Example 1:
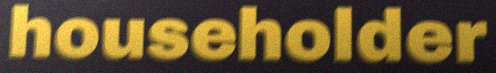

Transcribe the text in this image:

householder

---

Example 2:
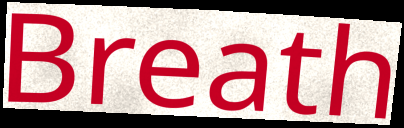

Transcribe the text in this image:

Breath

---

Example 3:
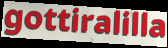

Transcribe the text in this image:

gottiralilla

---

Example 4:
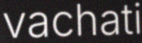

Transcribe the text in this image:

vachati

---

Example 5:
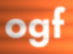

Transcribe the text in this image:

ogf